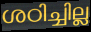
ശഠിച്ചില്ല